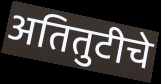
अतितुटीचे